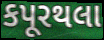
કપૂરથલા